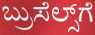
ಬ್ರುಸೆಲ್ಸ್‌ಗೆ